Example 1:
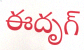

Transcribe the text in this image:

ఈదృగ్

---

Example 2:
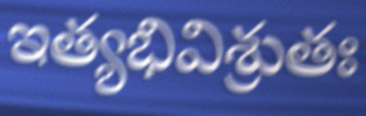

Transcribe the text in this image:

ఇత్యభివిశ్రుతః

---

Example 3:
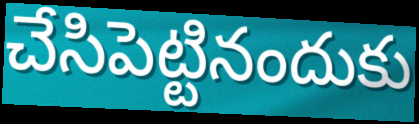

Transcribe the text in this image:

చేసిపెట్టినందుకు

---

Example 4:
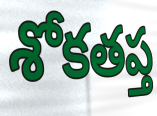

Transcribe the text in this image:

శోకతప్త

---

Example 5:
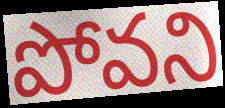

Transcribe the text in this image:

పోవని